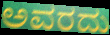
ಅವರದು